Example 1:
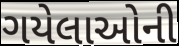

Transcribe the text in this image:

ગયેલાઓની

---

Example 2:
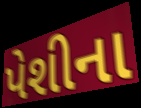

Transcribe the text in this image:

પેશીના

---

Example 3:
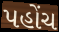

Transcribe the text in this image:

પહોંચ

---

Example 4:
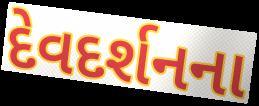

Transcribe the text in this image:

દેવદર્શનના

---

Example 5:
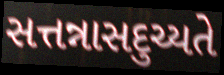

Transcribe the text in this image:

સત્તન્નાસદુચ્યતે